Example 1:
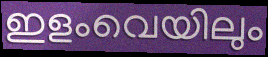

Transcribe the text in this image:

ഇളംവെയിലും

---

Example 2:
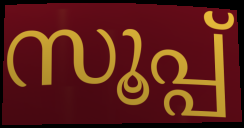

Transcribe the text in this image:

സൂപ്പ്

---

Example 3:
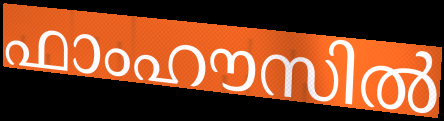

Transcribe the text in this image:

ഫാംഹൗസിൽ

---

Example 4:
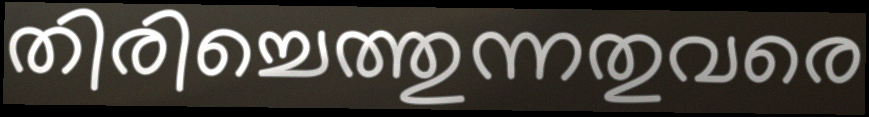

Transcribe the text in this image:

തിരിച്ചെത്തുന്നതുവരെ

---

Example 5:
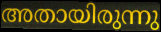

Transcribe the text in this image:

അതായിരുന്നു